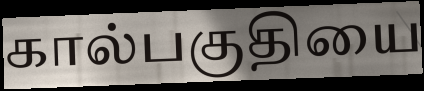
கால்பகுதியை